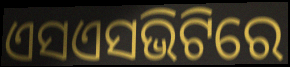
ଏସଏସଭିଟିରେ